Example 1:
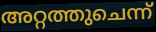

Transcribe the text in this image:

അറ്റത്തുചെന്ന്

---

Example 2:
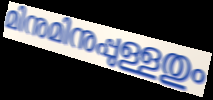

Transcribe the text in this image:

മിനുമിനുപ്പുള്ളതും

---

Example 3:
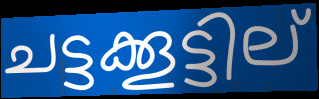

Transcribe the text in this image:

ചട്ടക്കൂട്ടില്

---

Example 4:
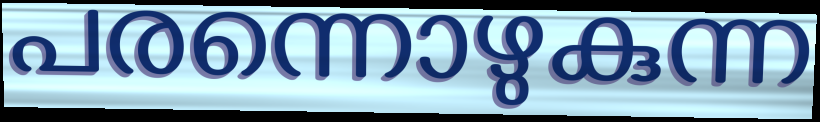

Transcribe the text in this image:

പരന്നൊഴുകുന്ന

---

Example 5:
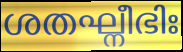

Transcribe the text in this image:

ശതഘ്നീഭിഃ